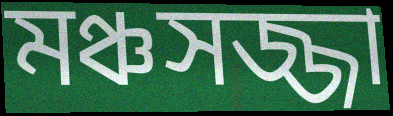
মঞ্চসজ্জা